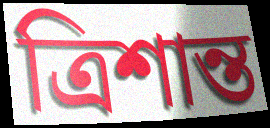
ত্রিশান্ত